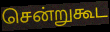
சென்றுகூட